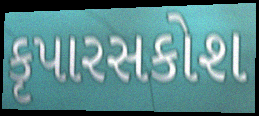
કૃપારસકોશ